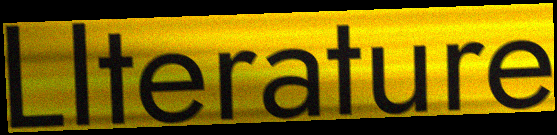
LIterature